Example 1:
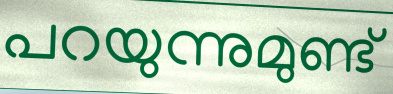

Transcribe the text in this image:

പറയുന്നുമുണ്ട്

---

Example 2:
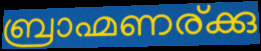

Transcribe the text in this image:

ബ്രാഹ്മണര്ക്കു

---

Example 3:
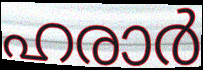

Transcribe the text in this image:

ഹരാർ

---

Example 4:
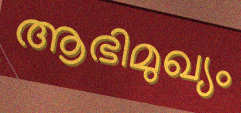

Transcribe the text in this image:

ആഭിമുഖ്യം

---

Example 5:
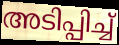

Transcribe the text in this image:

അടിപ്പിച്ച്